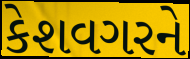
કેશવગરને